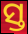
ସ୍ତ